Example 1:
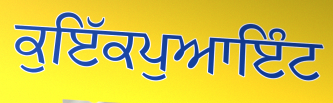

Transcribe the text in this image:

ਕੁਇੱਕਪੁਆਇੰਟ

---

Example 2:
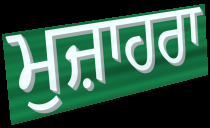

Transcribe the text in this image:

ਮੁਜ਼ਾਹਰਾ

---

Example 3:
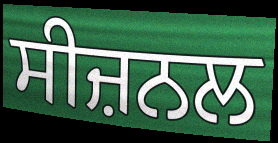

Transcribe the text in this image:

ਸੀਜ਼ਨਲ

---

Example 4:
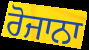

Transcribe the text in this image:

ਰੋਜਾਨਾ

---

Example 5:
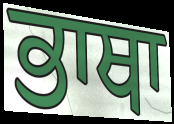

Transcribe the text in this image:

ਭਾਥਾ